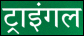
ट्राइंगल